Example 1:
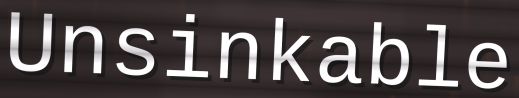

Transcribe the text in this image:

Unsinkable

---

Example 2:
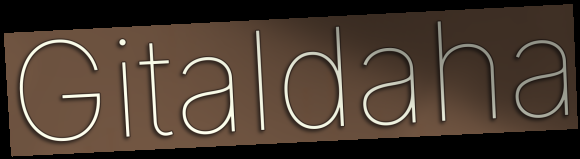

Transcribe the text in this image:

Gitaldaha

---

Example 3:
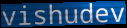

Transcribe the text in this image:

vishudev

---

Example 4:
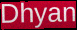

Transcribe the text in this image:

Dhyan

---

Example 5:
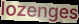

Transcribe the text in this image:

lozenges